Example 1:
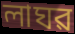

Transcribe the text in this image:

লাঘৱ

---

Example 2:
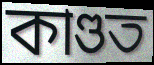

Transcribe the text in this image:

কাণ্ডত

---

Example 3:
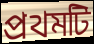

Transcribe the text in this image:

প্ৰথমটি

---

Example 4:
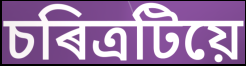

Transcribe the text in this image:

চৰিত্ৰটিয়ে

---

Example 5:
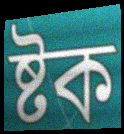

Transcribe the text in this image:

ষ্টক